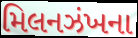
મિલનઝંખના